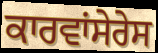
ਕਾਰਵਾਂਸੇਰੇਸ